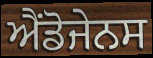
ਐਂਡੋਜੇਨਸ